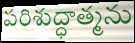
పరిశుద్ధాత్మను